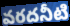
వరదనీటి